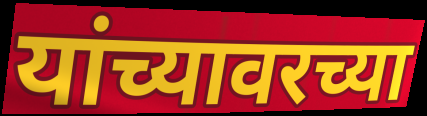
यांच्यावरच्या